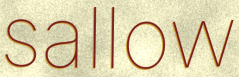
sallow